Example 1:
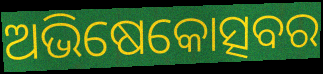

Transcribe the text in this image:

ଅଭିଷେକୋତ୍ସବର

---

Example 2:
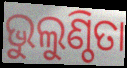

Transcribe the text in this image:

ଭୁଲୁଣ୍ଠିତା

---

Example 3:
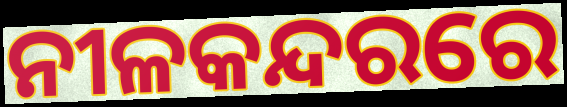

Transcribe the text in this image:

ନୀଳକନ୍ଦରରେ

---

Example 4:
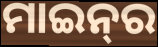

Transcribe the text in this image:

ମାଇନ୍‍ର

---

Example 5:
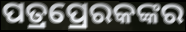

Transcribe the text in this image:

ପତ୍ରପ୍ରେରକଙ୍କର